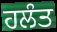
ਹਲੰਤ